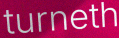
turneth